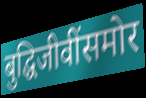
बुद्धिजीवींसमोर